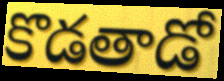
కొడతాడో